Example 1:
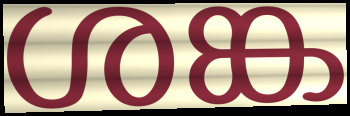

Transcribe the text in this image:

ശങ്ക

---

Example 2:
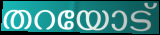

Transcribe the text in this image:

തറയോട്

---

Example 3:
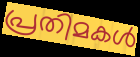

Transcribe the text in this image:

പ്രതിമകൾ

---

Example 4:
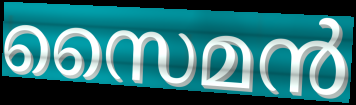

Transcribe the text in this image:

സൈമൻ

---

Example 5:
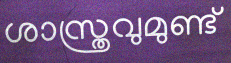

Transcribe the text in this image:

ശാസ്ത്രവുമുണ്ട്